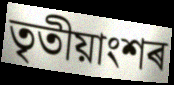
তৃতীয়াংশৰ